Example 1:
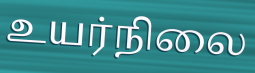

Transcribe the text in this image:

உயர்நிலை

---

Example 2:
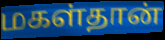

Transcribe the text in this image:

மகள்தான்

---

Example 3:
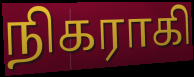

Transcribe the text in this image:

நிகராகி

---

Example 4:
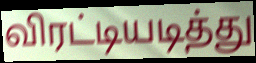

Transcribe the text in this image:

விரட்டியடித்து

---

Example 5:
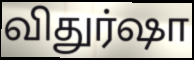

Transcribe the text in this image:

விதுர்ஷா